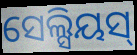
ସେଲ୍ସିୟସ୍